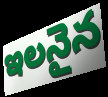
ఇలనైన